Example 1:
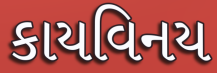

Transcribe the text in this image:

કાયવિનય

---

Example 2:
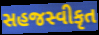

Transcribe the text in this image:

સહજસ્વીકૃત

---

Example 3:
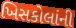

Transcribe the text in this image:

ખિસકોલાંની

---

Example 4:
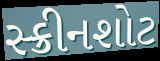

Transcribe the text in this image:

સ્ક્રીનશોટ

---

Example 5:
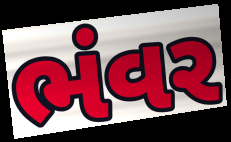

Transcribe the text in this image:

ભંવર